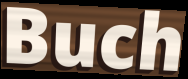
Buch